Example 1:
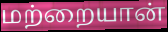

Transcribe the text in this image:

மற்றையான்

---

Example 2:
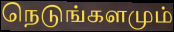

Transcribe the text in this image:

நெடுங்களமும்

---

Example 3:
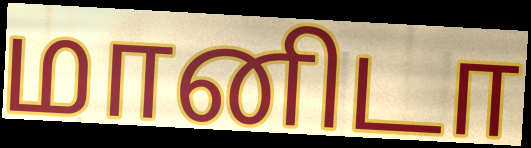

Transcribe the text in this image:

மானிடா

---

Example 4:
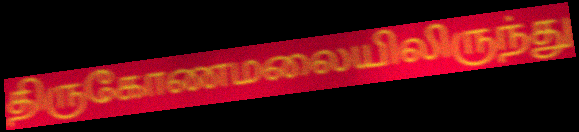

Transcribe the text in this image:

திருகோணமலையிலிருந்து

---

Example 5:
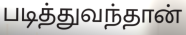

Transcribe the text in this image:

படித்துவந்தான்